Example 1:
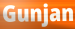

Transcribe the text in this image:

Gunjan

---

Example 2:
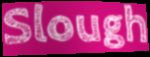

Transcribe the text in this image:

Slough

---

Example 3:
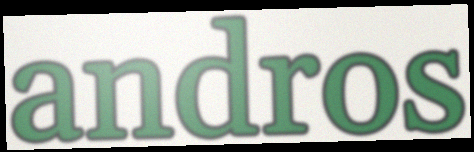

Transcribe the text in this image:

andros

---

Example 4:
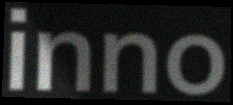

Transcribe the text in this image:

inno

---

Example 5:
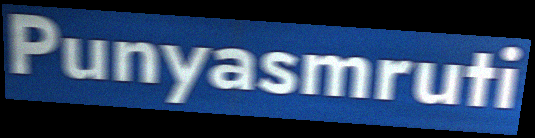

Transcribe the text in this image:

Punyasmruti